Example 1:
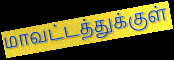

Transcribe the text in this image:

மாவட்டத்துக்குள்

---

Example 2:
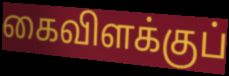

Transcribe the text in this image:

கைவிளக்குப்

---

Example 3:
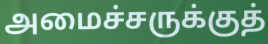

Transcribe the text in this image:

அமைச்சருக்குத்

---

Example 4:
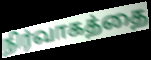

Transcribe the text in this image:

நிர்வாகத்தை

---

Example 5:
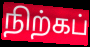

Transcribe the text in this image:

நிற்கப்